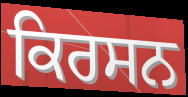
ਕਿਰਸਨ